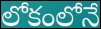
లోకంలోనే